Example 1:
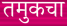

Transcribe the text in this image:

तमुकचा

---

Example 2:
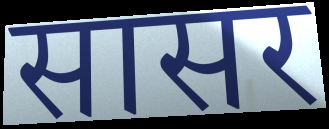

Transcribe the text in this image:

सासर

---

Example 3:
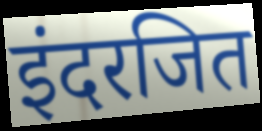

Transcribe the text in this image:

इंदरजित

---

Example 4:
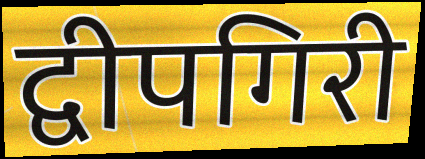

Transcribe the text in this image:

द्वीपगिरी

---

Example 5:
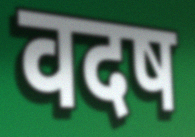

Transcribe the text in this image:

वदष